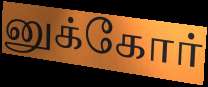
னுக்கோர்